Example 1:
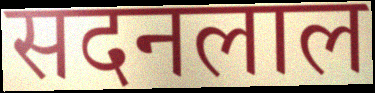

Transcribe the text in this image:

सदनलाल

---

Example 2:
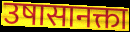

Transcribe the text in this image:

उषासानक्ता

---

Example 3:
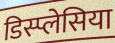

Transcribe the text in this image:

डिस्प्लेसिया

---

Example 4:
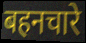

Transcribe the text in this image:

बहनचारे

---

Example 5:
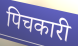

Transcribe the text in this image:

पिचकारी